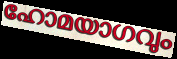
ഹോമയാഗവും